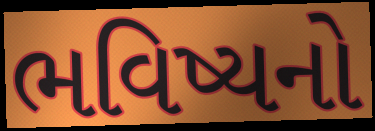
ભવિષ્યનો